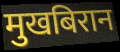
मुखबिरान